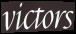
victors